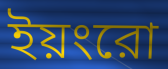
ইয়ংরো